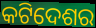
କଟିଦେଶର